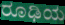
ರೂಢಿಯ